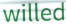
willed